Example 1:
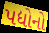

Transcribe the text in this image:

પદ્યોનો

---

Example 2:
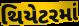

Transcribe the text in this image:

થિયેટરમાં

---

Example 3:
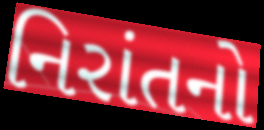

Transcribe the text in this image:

નિરાંતનો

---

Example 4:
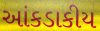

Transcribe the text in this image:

આંકડાકીય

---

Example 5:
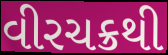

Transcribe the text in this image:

વીરચક્રથી